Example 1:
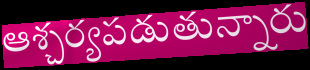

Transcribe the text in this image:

ఆశ్చర్యపడుతున్నారు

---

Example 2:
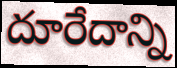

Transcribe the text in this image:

దూరేదాన్ని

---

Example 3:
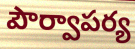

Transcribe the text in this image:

పౌర్వాపర్య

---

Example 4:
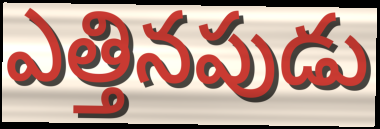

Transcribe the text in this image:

ఎత్తినపుడు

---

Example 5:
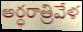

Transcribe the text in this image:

అర్ధరాత్రివేళ